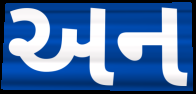
અન